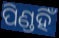
ପିଣ୍ଡହିଁ